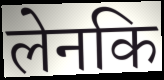
लेनकि